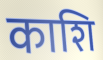
काशि